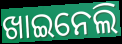
ଖାଇନେଲି